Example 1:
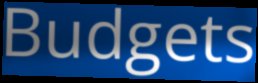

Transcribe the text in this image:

Budgets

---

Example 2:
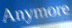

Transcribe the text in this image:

Anymore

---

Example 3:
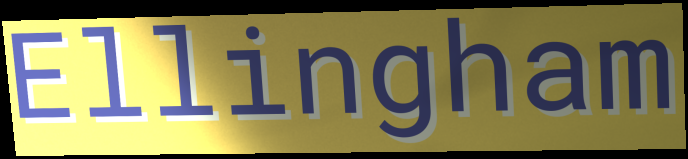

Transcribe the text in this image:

Ellingham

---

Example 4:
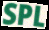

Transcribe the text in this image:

SPL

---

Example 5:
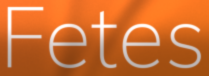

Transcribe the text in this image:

Fetes